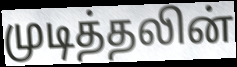
முடித்தலின்